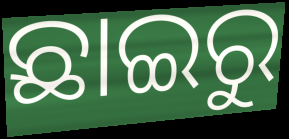
ଛାଇରୁ